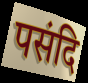
पसंदि